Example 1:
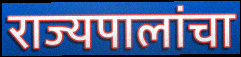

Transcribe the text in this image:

राज्यपालांचा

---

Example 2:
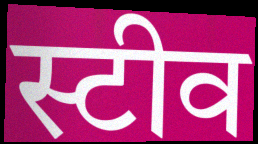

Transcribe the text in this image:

स्टीव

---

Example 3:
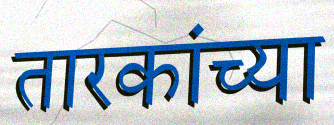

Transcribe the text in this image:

तारकांच्या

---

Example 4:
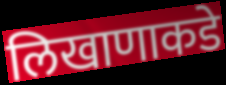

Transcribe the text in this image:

लिखाणाकडे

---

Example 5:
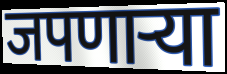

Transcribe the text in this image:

जपणाऱ्या